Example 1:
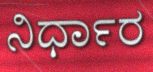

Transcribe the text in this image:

ನಿರ್ಧಾರ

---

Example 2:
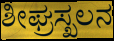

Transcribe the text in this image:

ಶೀಘ್ರಸ್ಖಲನ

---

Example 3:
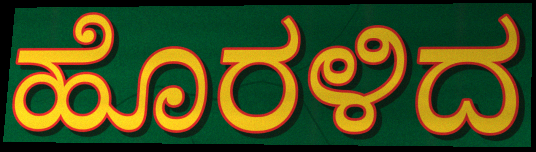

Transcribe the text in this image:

ಹೊರಳಿದ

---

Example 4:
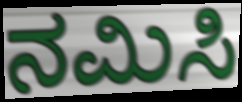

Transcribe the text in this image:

ನಮಿಸಿ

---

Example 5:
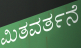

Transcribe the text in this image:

ಮಿತವರ್ತನೆ